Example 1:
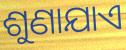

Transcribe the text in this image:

ଶୁଣାଯାଏ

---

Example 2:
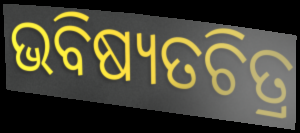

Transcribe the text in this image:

ଭବିଷ୍ୟତଚିତ୍ର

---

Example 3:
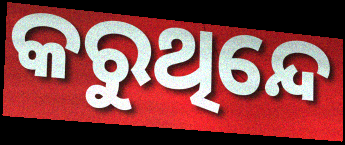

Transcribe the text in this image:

କରୁଥିନ୍ଦେ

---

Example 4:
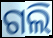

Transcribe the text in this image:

ଗଲି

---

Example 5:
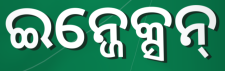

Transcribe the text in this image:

ଇନ୍ଜେକ୍ସନ୍